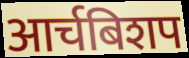
आर्चबिशप